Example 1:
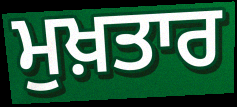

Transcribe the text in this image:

ਮੁਖ਼ਤਾਰ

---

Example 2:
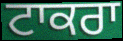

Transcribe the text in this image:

ਟਾਕਰਾ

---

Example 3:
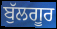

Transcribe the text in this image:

ਬੁੱਲਗੂਰ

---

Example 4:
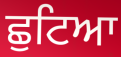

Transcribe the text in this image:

ਛੁਟਿਆ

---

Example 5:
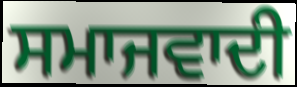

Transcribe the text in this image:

ਸਮਾਜਵਾਦੀ